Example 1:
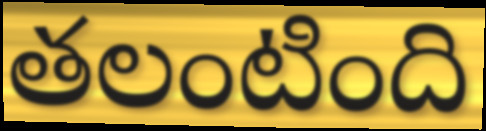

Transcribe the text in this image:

తలంటింది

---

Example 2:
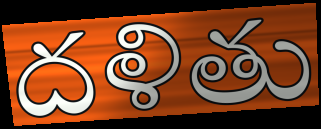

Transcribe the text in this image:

దళితు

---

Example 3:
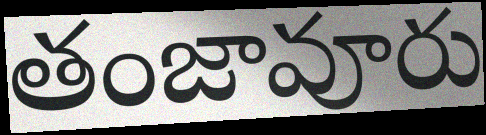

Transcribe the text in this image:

తంజావూరు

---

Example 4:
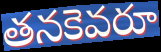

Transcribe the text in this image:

తనకెవరూ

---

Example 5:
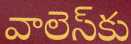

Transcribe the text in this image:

వాలెస్‌కు